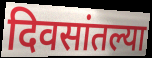
दिवसांतल्या